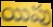
యిపు